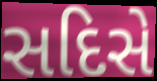
સદિસે